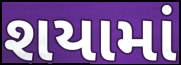
શયામાં